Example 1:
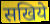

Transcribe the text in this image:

सखिये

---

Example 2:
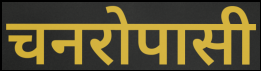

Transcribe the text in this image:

चनरोपासी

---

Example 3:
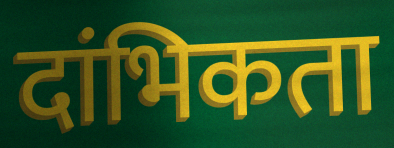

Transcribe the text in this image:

दांभिकता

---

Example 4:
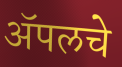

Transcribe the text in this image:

ॲपलचे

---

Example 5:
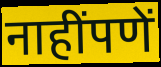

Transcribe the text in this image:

नाहींपणें